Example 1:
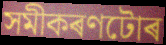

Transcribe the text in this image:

সমীকৰণটোৰ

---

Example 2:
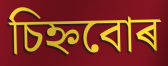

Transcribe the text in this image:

চিহ্নবোৰ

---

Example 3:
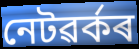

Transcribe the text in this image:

নেটৱৰ্কৰ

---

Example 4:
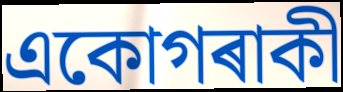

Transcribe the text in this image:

একোগৰাকী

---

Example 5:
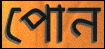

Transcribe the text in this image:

পোন